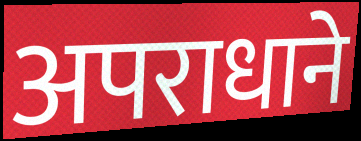
अपराधाने